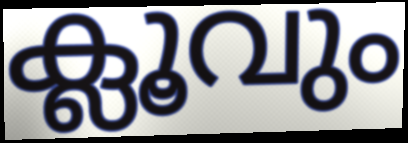
ക്ലൂവും